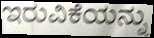
ಇರುವಿಕೆಯನ್ನು